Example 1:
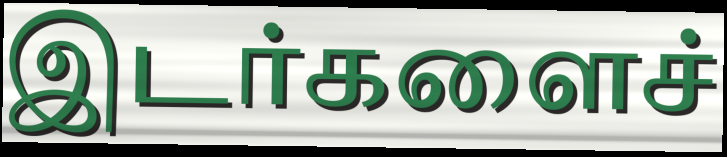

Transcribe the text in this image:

இடர்களைச்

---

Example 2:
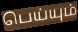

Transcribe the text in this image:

பெய்யும்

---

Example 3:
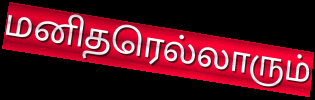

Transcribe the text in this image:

மனிதரெல்லாரும்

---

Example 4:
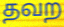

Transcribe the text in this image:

தவற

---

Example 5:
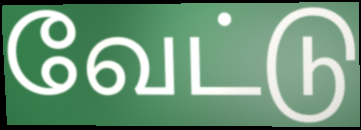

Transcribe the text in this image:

வேட்டு